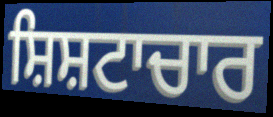
ਸ਼ਿਸ਼ਟਾਚਾਰ